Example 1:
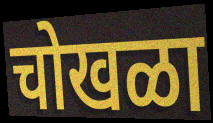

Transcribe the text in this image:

चोखळा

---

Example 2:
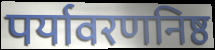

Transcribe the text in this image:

पर्यावरणनिष्ठ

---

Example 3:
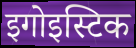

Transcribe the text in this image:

इगोइस्टिक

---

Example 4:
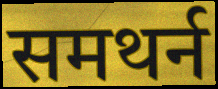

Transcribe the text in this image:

समथर्न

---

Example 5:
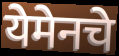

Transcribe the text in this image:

येमेनचे